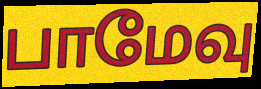
பாமேவு